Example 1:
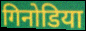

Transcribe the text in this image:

गिनोडिया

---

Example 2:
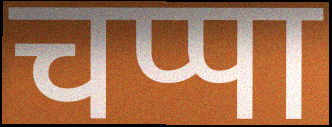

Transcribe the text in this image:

चप्पा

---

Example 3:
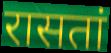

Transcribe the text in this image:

रासतां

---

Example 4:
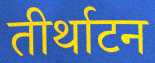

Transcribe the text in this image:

तीर्थाटन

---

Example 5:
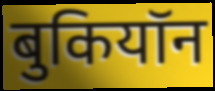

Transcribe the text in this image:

बुकियॉन